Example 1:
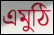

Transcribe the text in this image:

এমুঠি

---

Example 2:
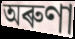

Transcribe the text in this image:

অৰুণা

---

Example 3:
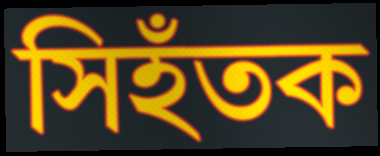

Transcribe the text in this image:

সিহঁতক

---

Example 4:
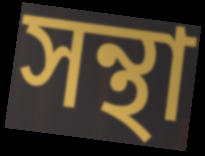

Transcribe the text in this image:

সন্থা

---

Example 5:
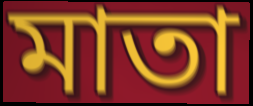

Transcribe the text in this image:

মাতা